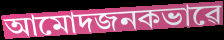
আমোদজনকভাৱে